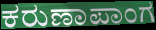
ಕರುಣಾಪಾಂಗ